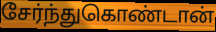
சேர்ந்துகொண்டான்